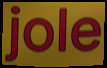
jole